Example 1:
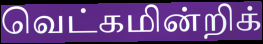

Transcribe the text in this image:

வெட்கமின்றிக்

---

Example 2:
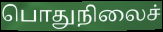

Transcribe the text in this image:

பொதுநிலைச்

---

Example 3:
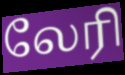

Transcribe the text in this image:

லேரி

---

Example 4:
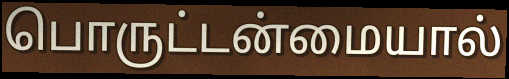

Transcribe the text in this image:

பொருட்டன்மையால்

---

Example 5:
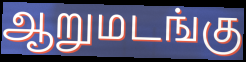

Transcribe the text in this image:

ஆறுமடங்கு